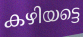
കഴിയട്ടെ